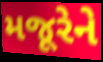
મજૂરેને